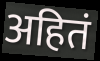
अहितं